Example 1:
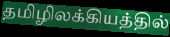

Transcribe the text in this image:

தமிழிலக்கியத்தில்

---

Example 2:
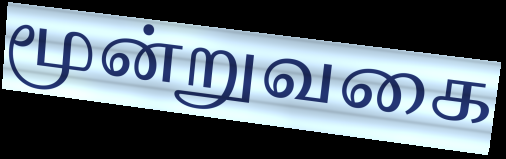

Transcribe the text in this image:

மூன்றுவகை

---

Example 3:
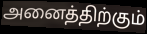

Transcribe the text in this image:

அனைத்திற்கும்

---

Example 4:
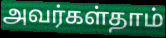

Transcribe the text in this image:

அவர்கள்தாம்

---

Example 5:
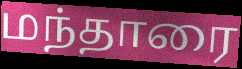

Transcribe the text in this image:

மந்தாரை